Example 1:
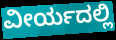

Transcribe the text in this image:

ವೀರ್ಯದಲ್ಲಿ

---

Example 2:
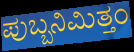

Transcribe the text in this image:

ಪುಬ್ಬನಿಮಿತ್ತಂ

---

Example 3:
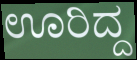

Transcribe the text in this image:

ಊರಿದ್ದ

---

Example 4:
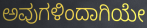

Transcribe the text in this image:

ಅವುಗಳಿಂದಾಗಿಯೇ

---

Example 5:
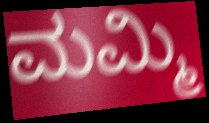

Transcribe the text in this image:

ಮಮ್ಮಿ